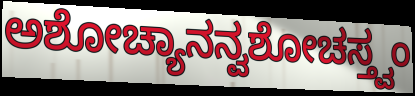
ಅಶೋಚ್ಯಾನನ್ವಶೋಚಸ್ತ್ವಂ